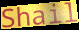
Shail